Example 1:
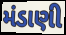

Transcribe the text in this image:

મંડાણી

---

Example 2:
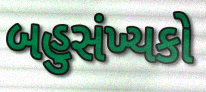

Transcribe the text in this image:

બહુસંખ્યકો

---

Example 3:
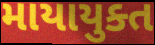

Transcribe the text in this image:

માયાયુક્ત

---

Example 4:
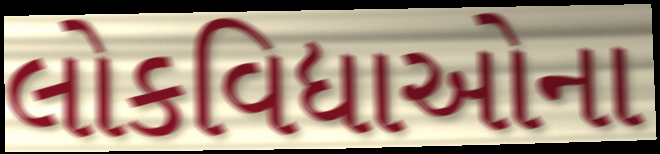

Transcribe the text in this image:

લોકવિદ્યાઓના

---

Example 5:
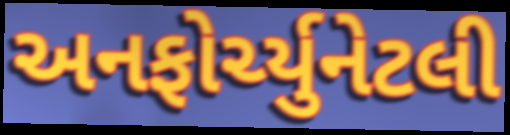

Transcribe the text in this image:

અનફોર્ચ્યુનેટલી